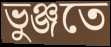
ভুঞ্জতে